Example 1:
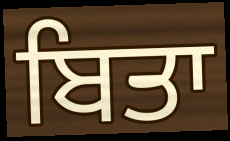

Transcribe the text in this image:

ਬਿਤਾ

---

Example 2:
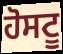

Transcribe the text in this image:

ਹੋਸਟੂ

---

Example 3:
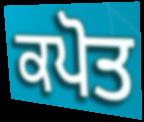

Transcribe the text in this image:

ਕਪੋਤ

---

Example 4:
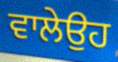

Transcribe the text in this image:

ਵਾਲੇਉਹ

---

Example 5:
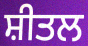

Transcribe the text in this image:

ਸ਼ੀਤਲ